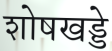
शोषखड्डे